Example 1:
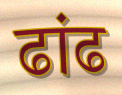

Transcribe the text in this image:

ढांढ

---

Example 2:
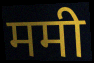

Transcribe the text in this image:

ममी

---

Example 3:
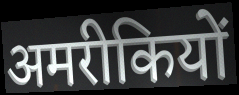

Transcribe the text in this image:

अमरीकियों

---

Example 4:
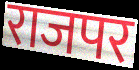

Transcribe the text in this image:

राजपर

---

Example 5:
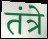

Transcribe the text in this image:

तंत्रे